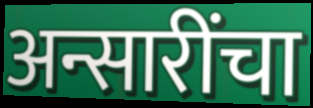
अन्सारींचा